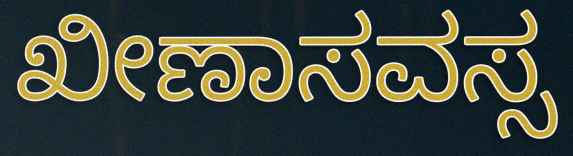
ಖೀಣಾಸವಸ್ಸ